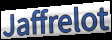
Jaffrelot